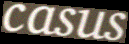
casus